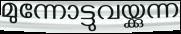
മുന്നോട്ടുവയ്ക്കുന്ന